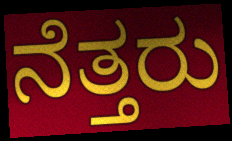
ನೆತ್ತರು